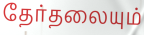
தேர்தலையும்